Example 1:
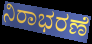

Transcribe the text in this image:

ನಿರಾಭರಣೆ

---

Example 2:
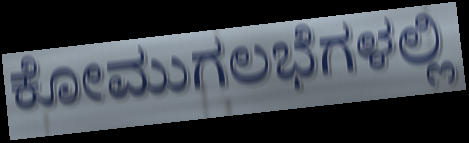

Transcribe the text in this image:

ಕೋಮುಗಲಭೆಗಳಲ್ಲಿ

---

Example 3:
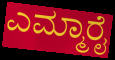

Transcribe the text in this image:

ಎಮ್ಮಾರೈ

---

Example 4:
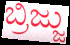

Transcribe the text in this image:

ಬ್ರಿಜ್ಜು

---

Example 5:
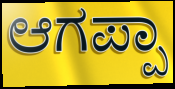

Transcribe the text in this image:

ಆಗಪ್ಪಾ